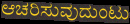
ಆಚರಿಸುವುದುಂಟು